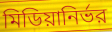
মিডিয়ানির্ভর